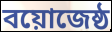
বয়োজেষ্ঠ